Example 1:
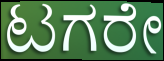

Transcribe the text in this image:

ಟಗರೇ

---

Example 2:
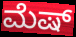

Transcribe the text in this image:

ಮೆಷ್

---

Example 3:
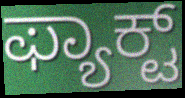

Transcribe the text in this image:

ಫ್ಯಾಕ್ಟ್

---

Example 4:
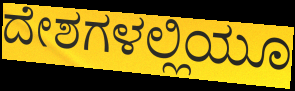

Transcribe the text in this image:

ದೇಶಗಳಲ್ಲಿಯೂ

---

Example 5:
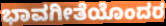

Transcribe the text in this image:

ಭಾವಗೀತೆಯೊಂದರ